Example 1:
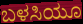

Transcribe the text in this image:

ಬಳಸಿಯೂ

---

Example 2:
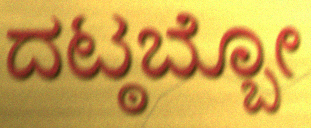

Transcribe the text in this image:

ದಟ್ಠಬ್ಬೋ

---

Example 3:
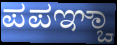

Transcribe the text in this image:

ಪಪಞ್ಚಾ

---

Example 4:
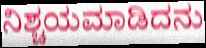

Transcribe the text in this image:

ನಿಶ್ಚಯಮಾಡಿದನು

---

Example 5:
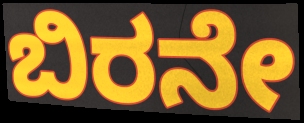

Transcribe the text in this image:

ಬಿರನೇ